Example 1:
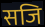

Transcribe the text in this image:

सजि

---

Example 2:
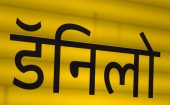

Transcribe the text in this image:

डॅनिलो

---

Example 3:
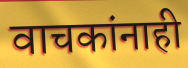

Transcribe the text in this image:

वाचकांनाही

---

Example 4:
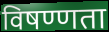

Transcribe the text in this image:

विषण्णता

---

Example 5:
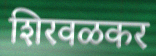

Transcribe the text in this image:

शिरवळकर